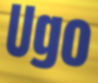
Ugo